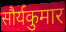
सौर्यकुमार